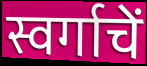
स्वर्गाचें